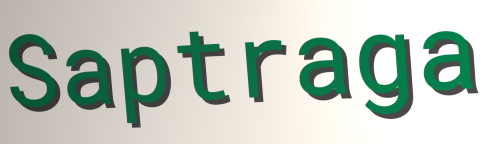
Saptraga